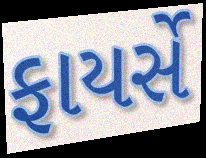
ફાયર્સે